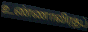
உண்ணாவிரதப்